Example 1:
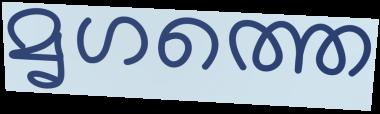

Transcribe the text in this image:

മൃഗത്തെ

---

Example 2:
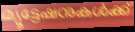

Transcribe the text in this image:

മ്യൂട്ടേഷനുകൾക്ക്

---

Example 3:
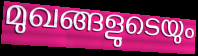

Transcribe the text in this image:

മുഖങ്ങളുടെയും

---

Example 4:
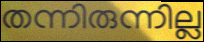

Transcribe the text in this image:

തന്നിരുന്നില്ല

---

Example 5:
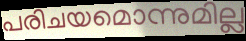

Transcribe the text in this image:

പരിചയമൊന്നുമില്ല